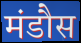
मंडौस